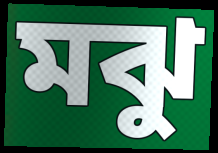
মঝু